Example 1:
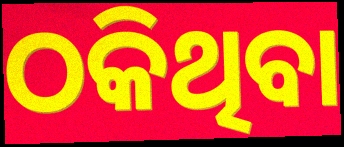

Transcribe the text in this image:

ଠକିଥିବା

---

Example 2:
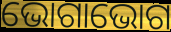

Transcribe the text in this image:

ଭୋଗାଭୋଗ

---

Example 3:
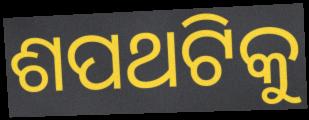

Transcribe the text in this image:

ଶପଥଟିକୁ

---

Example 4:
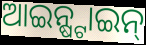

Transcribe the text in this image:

ଆଇନ୍ଷ୍ଟାଇନ୍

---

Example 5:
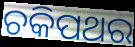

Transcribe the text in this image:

ଚକିପଥର